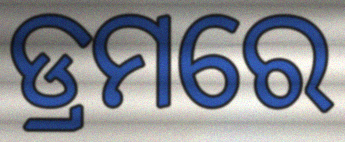
ଡ୍ରମରେ